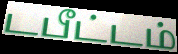
டபீட்டம்